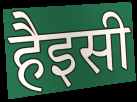
हैइसी